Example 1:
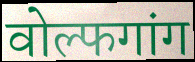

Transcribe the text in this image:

वोल्फगांग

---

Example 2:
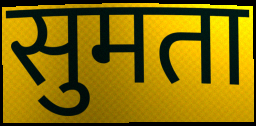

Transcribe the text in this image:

सुमता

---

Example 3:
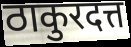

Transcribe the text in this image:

ठाकुरदत्त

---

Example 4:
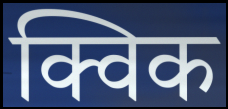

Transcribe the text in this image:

क्विक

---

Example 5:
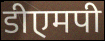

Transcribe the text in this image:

डीएमपी